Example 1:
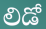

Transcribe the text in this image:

లిడో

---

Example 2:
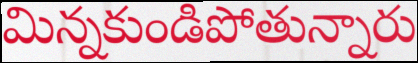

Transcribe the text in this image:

మిన్నకుండిపోతున్నారు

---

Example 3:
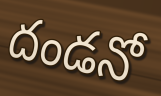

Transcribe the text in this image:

దండనో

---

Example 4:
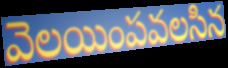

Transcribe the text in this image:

వెలయింపవలసిన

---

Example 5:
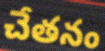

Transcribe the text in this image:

చేతనం